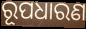
ରୂପଧାରଣ